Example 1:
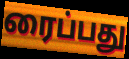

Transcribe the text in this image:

ரைப்பது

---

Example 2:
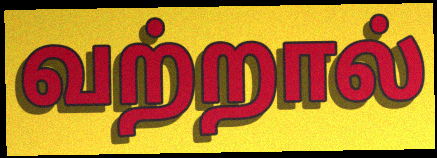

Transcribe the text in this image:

வற்றால்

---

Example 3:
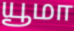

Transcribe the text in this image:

யூமா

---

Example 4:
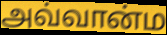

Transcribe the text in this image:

அவ்வான்ம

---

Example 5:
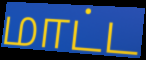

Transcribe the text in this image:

மாட்ட